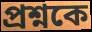
প্রশ্নকে